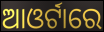
ଆଓର୍ଟାରେ